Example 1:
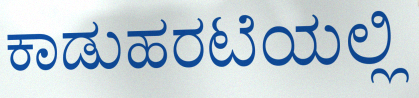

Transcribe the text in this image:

ಕಾಡುಹರಟೆಯಲ್ಲಿ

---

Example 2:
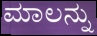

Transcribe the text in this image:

ಮಾಲನ್ನು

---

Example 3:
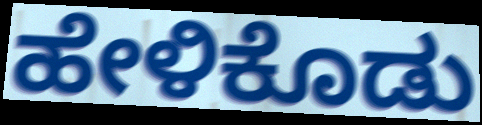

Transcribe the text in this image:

ಹೇಳಿಕೊಡು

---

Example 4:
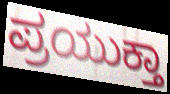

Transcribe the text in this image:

ಪ್ರಯುಕ್ತಾ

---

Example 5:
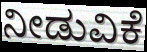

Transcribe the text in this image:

ನೀಡುವಿಕೆ